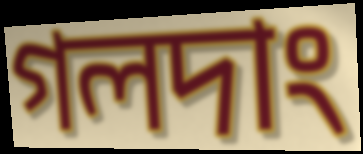
গলদাং